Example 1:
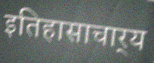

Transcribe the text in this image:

इतिहासाचार्य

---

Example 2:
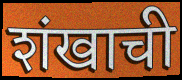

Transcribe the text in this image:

शंखाची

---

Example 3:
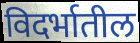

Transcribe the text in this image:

विदर्भातील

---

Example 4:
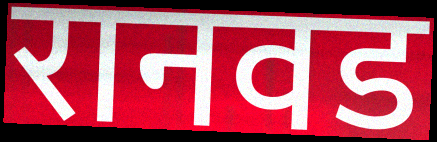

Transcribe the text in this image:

रानवड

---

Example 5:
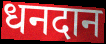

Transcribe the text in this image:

धनदान